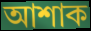
আশাক